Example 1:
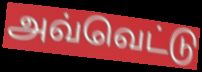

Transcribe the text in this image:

அவ்வெட்டு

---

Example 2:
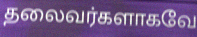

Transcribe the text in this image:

தலைவர்களாகவே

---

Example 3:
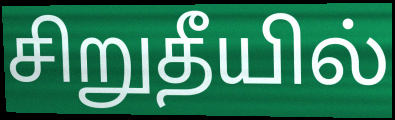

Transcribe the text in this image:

சிறுதீயில்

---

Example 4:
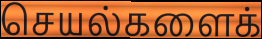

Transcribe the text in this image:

செயல்களைக்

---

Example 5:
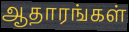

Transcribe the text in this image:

ஆதாரங்கள்